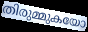
തിരുമ്മുകയോ